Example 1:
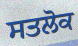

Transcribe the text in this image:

ਸਤਲੋਕ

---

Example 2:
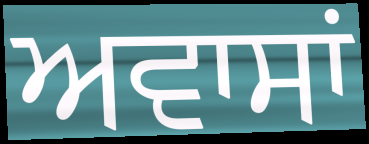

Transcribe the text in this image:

ਅਵਾਸਾਂ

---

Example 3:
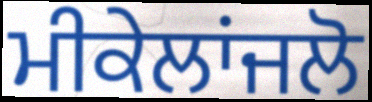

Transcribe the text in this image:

ਮੀਕੇਲਾਂਜਲੋ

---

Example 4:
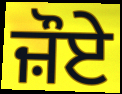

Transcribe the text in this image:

ਜ਼ੌਏ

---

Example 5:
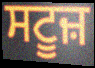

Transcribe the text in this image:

ਸਟੂਜ਼